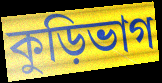
কুড়িভাগ